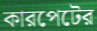
কারপেটের